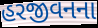
હરજીવનના